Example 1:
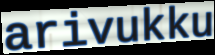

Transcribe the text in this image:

arivukku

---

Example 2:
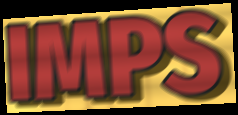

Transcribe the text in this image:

IMPS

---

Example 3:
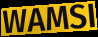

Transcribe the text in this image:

WAMSI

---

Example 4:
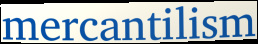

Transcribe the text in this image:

mercantilism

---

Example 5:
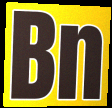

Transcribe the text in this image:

Bn